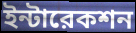
ইন্টারেকশন